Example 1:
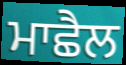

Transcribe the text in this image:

ਮਾਛੈਲ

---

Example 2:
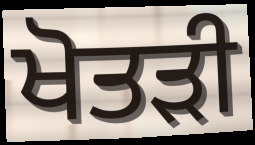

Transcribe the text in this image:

ਖੋਤੜੀ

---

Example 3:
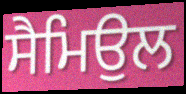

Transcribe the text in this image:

ਸੈਮਿਉਲ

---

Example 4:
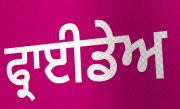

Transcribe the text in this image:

ਫ੍ਰਾਈਡੇਅ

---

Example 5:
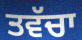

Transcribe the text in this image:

ਤਵੱਚਾ